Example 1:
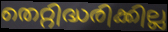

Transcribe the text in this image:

തെറ്റിദ്ധരിക്കില്ല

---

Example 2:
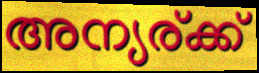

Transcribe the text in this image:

അന്യര്ക്ക്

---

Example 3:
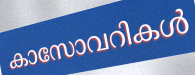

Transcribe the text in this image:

കാസോവറികൾ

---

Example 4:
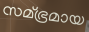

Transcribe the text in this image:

സമ്ഭ്രമായ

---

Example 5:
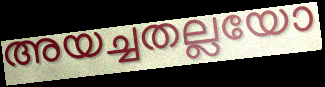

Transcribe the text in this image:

അയച്ചതല്ലയോ